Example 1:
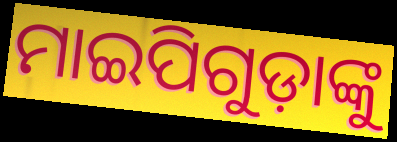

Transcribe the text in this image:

ମାଇପିଗୁଡ଼ାଙ୍କୁ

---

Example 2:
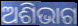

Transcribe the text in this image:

ଅଶିଭାଗ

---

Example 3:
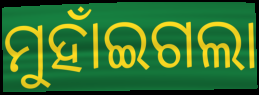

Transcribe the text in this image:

ମୁହାଁଇଗଲା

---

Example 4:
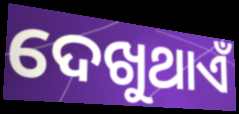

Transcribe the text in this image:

ଦେଖୁଥାଏଁ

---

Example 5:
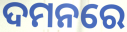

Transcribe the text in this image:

ଦମନରେ